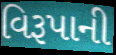
વિરૂપાની